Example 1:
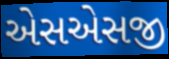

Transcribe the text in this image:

એસએસજી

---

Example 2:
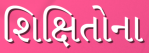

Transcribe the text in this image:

શિક્ષિતોના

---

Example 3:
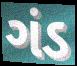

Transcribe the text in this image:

ગંડ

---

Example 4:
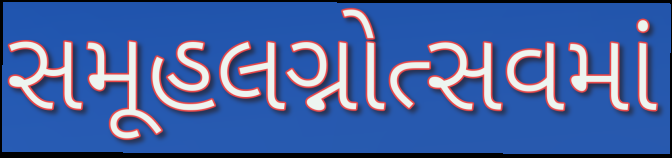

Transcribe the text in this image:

સમૂહલગ્નોત્સવમાં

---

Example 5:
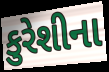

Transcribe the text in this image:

કુરેશીના